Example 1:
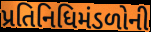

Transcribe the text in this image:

પ્રતિનિધિમંડળોની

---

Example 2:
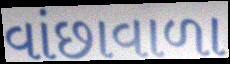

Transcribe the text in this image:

વાંછાવાળા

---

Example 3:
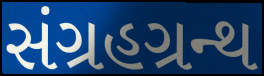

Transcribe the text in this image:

સંગ્રહગ્રન્થ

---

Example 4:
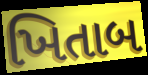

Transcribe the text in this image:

ખિતાબ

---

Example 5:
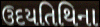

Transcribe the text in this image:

ઉદયતિથિના